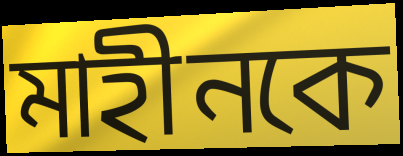
মাহীনকে